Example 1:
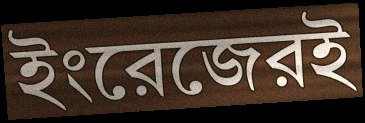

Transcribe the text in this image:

ইংরেজেরই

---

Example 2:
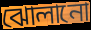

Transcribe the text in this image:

ঝোলানো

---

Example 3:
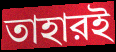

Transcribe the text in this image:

তাহারই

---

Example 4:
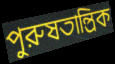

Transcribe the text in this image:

পুরুষতান্ত্রিক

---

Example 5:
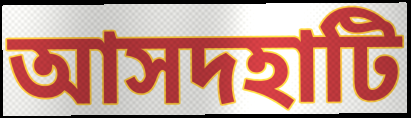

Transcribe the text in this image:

আসদহাটি